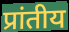
प्रांतीय